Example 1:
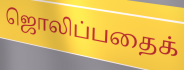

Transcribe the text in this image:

ஜொலிப்பதைக்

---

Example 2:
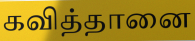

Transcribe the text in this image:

கவித்தானை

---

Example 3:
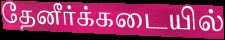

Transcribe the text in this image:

தேனீர்க்கடையில்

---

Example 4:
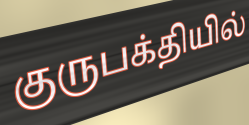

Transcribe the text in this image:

குருபக்தியில்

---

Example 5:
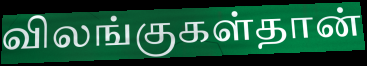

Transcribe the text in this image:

விலங்குகள்தான்